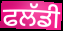
ਫਲੱਡੀ